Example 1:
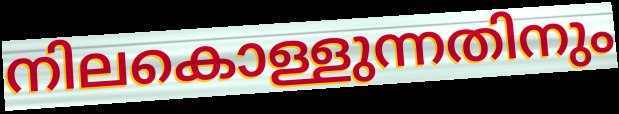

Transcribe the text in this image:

നിലകൊള്ളുന്നതിനും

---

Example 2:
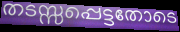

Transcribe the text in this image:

തടസ്സപ്പെട്ടതോടെ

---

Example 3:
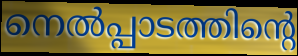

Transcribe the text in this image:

നെൽപ്പാടത്തിന്റെ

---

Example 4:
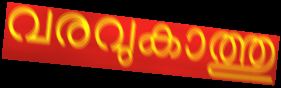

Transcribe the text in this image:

വരവുകാത്തു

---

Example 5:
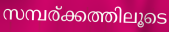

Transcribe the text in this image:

സമ്പര്ക്കത്തിലൂടെ